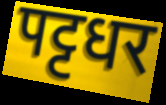
पट्टधर